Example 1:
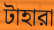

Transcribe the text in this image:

টাহারা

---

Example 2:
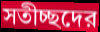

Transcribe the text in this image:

সতীচ্ছদের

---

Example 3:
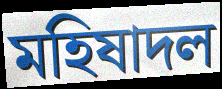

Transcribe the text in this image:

মহিষাদল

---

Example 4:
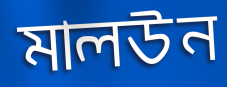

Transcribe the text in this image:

মালউন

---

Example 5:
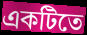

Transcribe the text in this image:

একটিতে